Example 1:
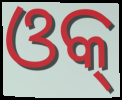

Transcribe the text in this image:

ଓକ୍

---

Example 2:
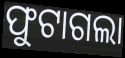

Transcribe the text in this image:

ଫୁଟାଗଲା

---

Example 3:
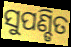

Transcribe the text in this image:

ସୁପଣ୍ଡିତ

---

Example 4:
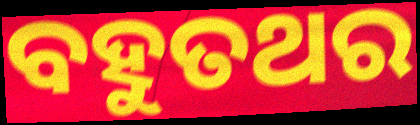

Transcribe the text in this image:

ବହୁତଥର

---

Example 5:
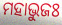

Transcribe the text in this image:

ମହାଭୁଜଃ